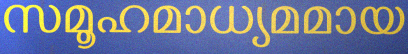
സമൂഹമാധ്യമമായ